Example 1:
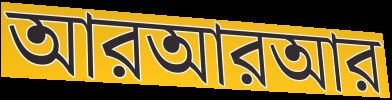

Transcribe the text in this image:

আরআরআর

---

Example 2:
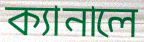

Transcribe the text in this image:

ক্যানালে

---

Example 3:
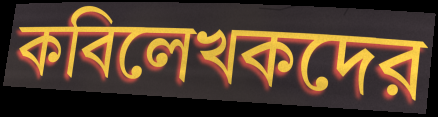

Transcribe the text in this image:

কবিলেখকদের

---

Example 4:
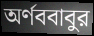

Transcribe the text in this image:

অর্ণববাবুর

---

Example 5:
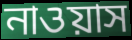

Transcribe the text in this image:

নাওয়াস